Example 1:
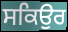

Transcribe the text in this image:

ਸਕਿਉਰ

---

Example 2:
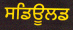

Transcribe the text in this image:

ਸਡਿਊਲਡ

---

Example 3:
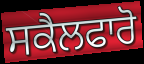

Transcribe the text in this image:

ਸਕੈਲਫਾਰੋ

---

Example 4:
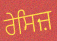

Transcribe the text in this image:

ਰੇਸਿਜ਼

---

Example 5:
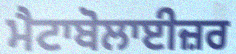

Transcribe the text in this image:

ਮੈਟਾਬੋਲਾਈਜ਼ਰ